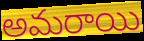
అమరాయి